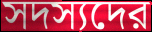
সদস্যদের